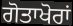
ਗੋਤਾਖੋਰਾਂ